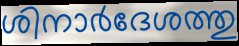
ശിനാർദേശത്തു